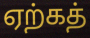
ஏற்கத்